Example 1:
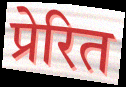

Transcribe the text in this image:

प्रेरित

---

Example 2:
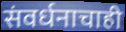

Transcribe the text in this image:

संवर्धनाचाही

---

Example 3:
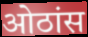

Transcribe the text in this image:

ओठांस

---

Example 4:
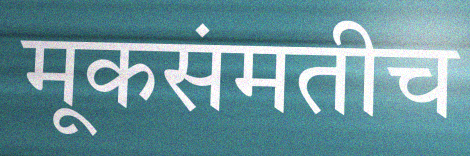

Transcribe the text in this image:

मूकसंमतीच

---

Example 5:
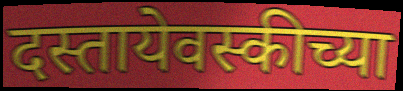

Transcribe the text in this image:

दस्तायेवस्कीच्या